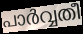
പാർവ്വതീ